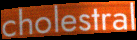
cholestral